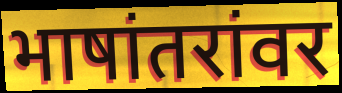
भाषांतरांवर